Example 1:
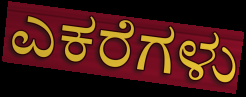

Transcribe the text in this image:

ಎಕರೆಗಳು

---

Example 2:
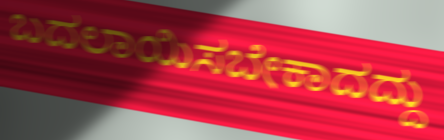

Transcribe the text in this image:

ಬದಲಾಯಿಸಬೇಕಾದದ್ದು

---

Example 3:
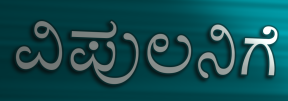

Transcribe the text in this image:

ವಿಪುಲನಿಗೆ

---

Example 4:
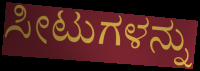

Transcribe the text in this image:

ಸೀಟುಗಳನ್ನು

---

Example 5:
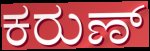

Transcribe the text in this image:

ಕರುಣ್